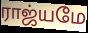
ராஜ்யமே